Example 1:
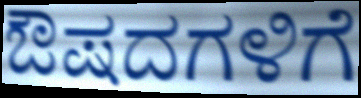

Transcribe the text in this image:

ಔಷದಗಳಿಗೆ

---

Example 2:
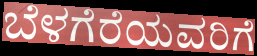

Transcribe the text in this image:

ಬೆಳಗೆರೆಯವರಿಗೆ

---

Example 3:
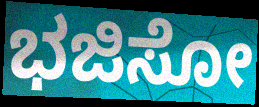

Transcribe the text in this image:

ಭಜಿಸೋ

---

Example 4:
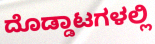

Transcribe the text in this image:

ದೊಡ್ಡಾಟಗಳಲ್ಲಿ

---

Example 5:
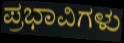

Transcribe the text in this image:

ಪ್ರಭಾವಿಗಳು